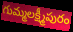
గుమ్మలక్ష్మీపురం